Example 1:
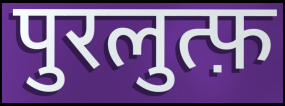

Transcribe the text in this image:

पुरलुत्फ़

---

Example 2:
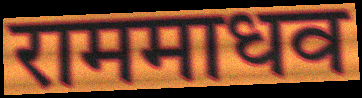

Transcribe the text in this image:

राममाधव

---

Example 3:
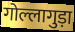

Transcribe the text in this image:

गोल्लागुड़ा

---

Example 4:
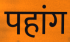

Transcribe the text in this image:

पहांग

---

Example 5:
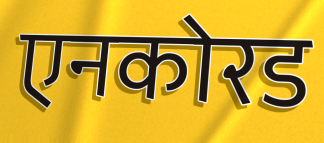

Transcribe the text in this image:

एनकोरड